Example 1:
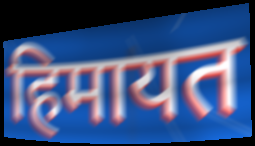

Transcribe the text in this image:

हिमायत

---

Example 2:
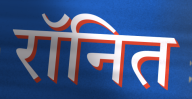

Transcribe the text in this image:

रॉनित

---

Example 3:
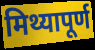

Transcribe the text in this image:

मिथ्यापूर्ण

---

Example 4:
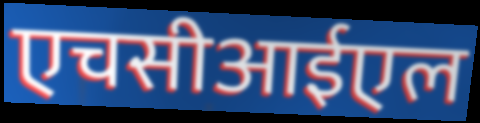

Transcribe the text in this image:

एचसीआईएल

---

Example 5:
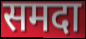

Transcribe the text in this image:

समदा